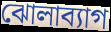
ঝোলাব্যাগ